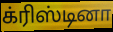
க்ரிஸ்டினா